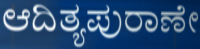
ಆದಿತ್ಯಪುರಾಣೇ